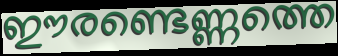
ഈരണ്ടെണ്ണത്തെ